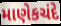
માણેકચંદે